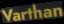
Varthan